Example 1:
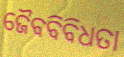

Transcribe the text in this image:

ଜୈବବିବିଧତା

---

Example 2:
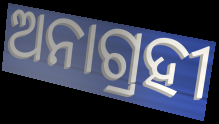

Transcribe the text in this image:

ଅନାଗ୍ରହୀ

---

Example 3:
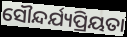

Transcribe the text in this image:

ସୌନ୍ଦର୍ଯ୍ୟପ୍ରିୟତା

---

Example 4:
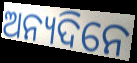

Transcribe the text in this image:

ଅନ୍ୟଦିନେ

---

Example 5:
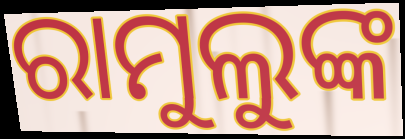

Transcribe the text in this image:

ରାମୁଲୁଙ୍କ